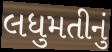
લધુમતીનું